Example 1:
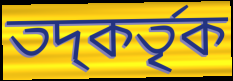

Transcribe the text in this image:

তদ্‌কর্তৃক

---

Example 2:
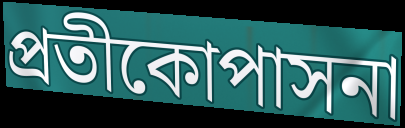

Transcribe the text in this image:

প্রতীকোপাসনা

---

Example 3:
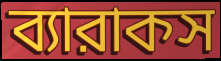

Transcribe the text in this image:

ব্যারাকস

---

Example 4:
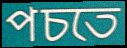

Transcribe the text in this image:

পচতে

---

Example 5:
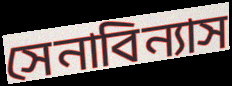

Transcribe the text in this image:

সেনাবিন্যাস